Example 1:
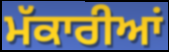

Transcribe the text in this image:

ਮੱਕਾਰੀਆਂ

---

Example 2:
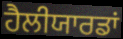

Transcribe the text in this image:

ਹੈਲੀਯਾਰਡਾਂ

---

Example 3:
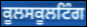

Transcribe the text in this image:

ਕੂਲਸਕੂਲਟਿੰਗ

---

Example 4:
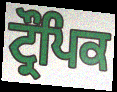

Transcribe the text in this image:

ਟ੍ਰੌਪਿਕ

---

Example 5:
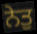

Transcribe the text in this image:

ਨੇਤੁ